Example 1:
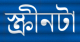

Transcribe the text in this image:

স্ক্রীনটা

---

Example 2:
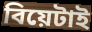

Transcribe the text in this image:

বিয়েটাই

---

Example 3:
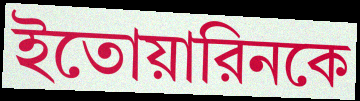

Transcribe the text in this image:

ইতোয়ারিনকে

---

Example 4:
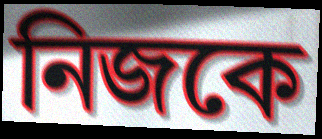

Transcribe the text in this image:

নিজকে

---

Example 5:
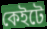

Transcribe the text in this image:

কেইটে